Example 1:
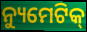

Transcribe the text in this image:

ନ୍ୟୁମେଟିକ୍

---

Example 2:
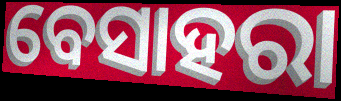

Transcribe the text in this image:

ବେସାହରା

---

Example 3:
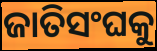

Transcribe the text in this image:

ଜାତିସଂଘକୁ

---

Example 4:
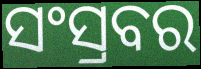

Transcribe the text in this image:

ସଂସ୍ରବର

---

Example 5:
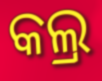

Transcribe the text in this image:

କଲ୍ର